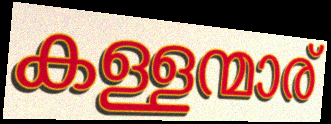
കള്ളന്മാര്